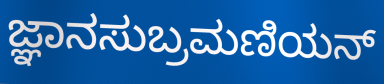
ಜ್ಞಾನಸುಬ್ರಮಣಿಯನ್